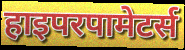
हाइपरपामेटर्स